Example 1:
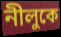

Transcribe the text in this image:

নীলুকে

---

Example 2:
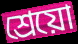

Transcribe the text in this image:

শ্রেয়ো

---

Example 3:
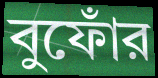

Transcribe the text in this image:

বুফোঁর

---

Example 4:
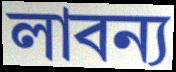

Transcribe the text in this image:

লাবন্য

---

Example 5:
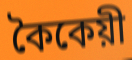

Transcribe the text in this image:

কৈকেয়ী